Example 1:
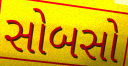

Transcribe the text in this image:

સોબસો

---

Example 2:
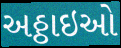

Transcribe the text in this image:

અઠ્ઠાઇઓ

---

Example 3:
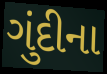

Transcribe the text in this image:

ગુંદીના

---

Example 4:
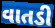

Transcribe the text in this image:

વાતડી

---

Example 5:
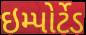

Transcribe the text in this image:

ઇમ્પોર્ટેડ